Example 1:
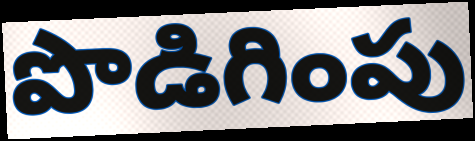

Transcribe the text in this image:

పొడిగింపు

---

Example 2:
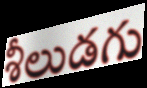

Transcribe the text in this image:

శీలుడగు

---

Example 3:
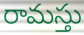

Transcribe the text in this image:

రామస్తు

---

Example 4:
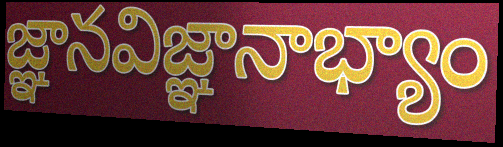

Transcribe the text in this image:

జ్ఞానవిజ్ఞానాభ్యాం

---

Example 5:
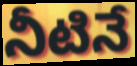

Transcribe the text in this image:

నీటినే